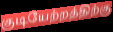
குடியேற்றத்திற்கு